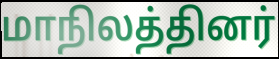
மாநிலத்தினர்